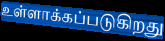
உள்ளாக்கப்படுகிறது